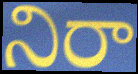
నిరా